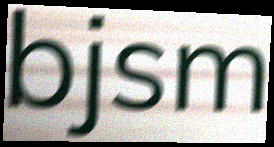
bjsm